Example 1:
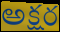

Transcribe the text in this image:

అక్షర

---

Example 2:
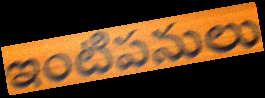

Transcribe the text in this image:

ఇంటిపనులు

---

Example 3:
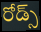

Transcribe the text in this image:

రోడ్స్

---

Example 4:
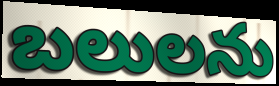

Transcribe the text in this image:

బలులను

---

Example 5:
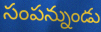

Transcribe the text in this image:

సంపన్నుండు